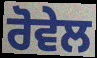
ਰੋਵੇਲ